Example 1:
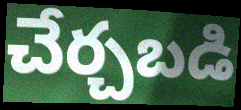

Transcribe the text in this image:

చేర్చబడి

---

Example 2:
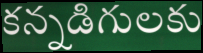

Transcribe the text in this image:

కన్నడిగులకు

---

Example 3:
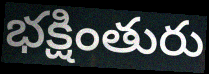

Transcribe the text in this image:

భక్షింతురు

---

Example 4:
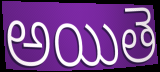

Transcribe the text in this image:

అయితె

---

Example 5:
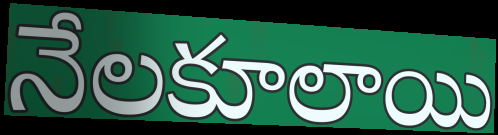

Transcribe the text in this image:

నేలకూలాయి